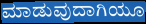
ಮಾಡುವುದಾಗಿಯೂ